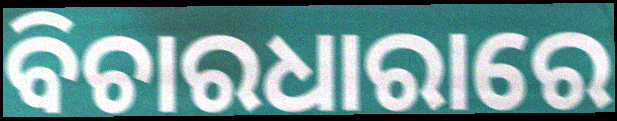
ବିଚାରଧାରାରେ